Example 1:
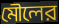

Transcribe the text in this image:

মৌলের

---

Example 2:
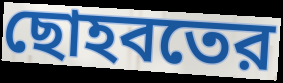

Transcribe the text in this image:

ছোহবতের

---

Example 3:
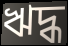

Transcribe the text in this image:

ঋদ্ধ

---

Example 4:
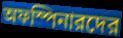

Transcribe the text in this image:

অফস্পিনারদের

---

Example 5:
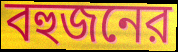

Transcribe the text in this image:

বহুজনের